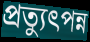
প্রত্যুৎপন্ন